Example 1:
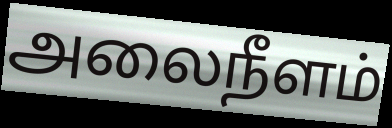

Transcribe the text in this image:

அலைநீளம்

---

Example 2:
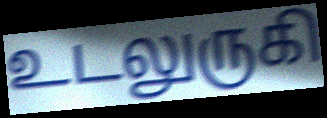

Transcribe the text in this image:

உடலுருகி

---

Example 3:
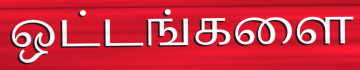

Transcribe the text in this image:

ஒட்டங்களை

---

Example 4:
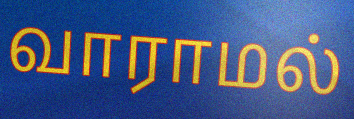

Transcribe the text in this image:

வாராமல்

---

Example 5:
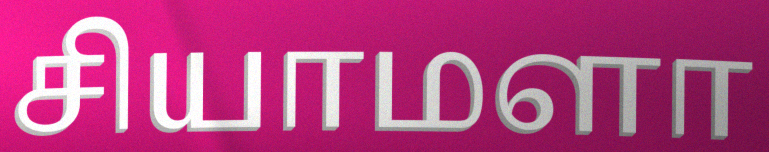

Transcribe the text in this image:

சியாமளா